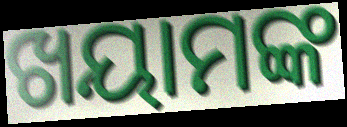
ଖୟାମଙ୍କ